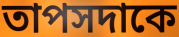
তাপসদাকে